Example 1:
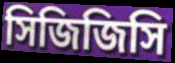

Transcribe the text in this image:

সিজিজিসি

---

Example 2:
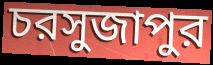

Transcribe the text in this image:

চরসুজাপুর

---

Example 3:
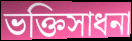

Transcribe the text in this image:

ভক্তিসাধনা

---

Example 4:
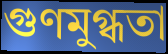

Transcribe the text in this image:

গুণমুগ্ধতা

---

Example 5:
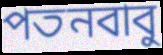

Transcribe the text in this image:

পতনবাবু